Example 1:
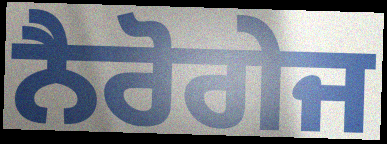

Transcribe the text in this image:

ਨੈਰੋਗੇਜ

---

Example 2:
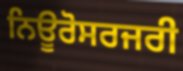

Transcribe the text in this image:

ਨਿਊਰੋਸਰਜਰੀ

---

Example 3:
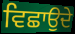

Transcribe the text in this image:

ਵਿਛਾਉਦੇ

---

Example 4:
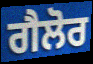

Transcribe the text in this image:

ਗੈਲੋਰ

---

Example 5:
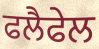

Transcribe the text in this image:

ਫਲੈਫੇਲ